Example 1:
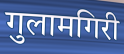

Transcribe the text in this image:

गुलामगिरी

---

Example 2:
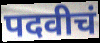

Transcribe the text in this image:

पदवीचं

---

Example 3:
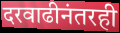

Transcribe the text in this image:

दरवाढीनंतरही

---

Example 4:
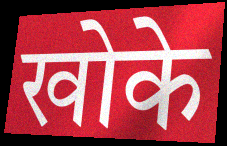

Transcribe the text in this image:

खोके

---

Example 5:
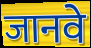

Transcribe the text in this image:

जानवे